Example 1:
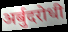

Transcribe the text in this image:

अर्बुदरोधी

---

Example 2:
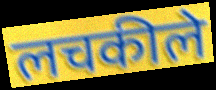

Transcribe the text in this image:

लचकीले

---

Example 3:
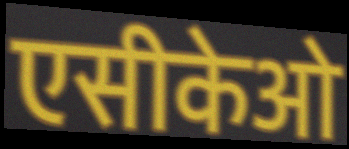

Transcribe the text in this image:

एसीकेओ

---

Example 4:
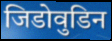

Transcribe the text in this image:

जिडोवुडिन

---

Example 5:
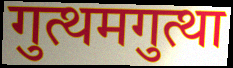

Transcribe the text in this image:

गुत्थमगुत्था